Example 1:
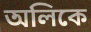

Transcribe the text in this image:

অলিকে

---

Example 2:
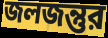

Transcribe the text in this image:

জলজন্তুর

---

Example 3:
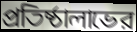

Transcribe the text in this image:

প্রতিষ্ঠালাভের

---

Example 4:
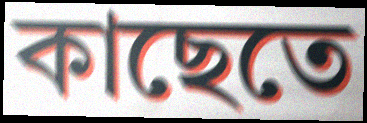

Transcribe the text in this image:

কাছেতে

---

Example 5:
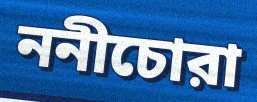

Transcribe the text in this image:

ননীচোরা